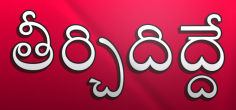
తీర్చిదిద్దే